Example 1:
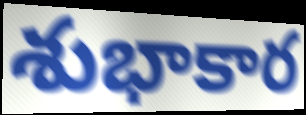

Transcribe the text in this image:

శుభాకార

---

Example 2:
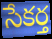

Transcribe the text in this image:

సేకర్త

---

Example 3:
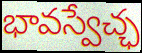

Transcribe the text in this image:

భావస్వేచ్ఛ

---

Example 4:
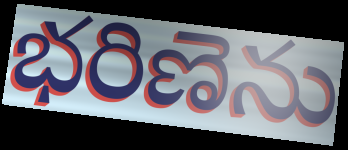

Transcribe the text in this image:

భరిణెను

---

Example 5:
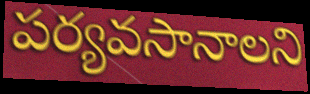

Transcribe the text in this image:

పర్యవసానాలని